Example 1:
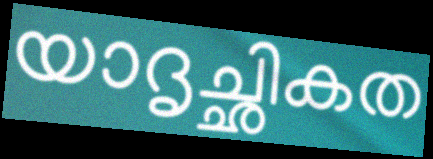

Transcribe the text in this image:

യാദൃച്ഛികത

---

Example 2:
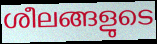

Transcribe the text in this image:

ശീലങ്ങളുടെ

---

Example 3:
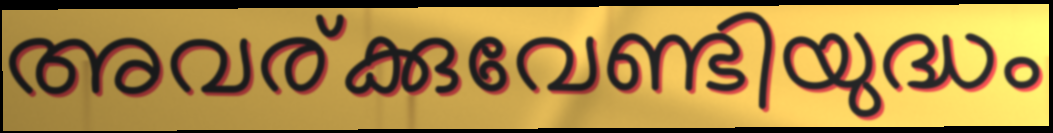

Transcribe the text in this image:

അവര്ക്കുവേണ്ടിയുദ്ധം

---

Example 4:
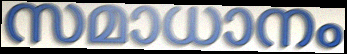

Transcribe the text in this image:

സമാധാനം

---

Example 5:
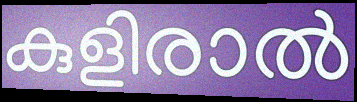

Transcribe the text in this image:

കുളിരാൽ